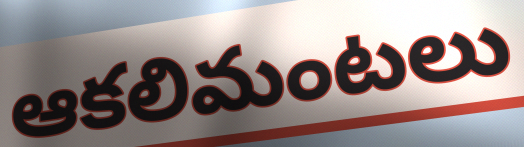
ఆకలిమంటలు